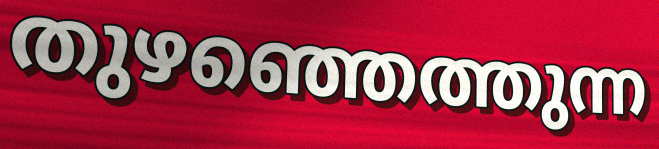
തുഴഞ്ഞെത്തുന്ന